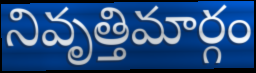
నివృత్తిమార్గం